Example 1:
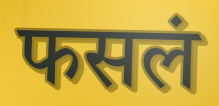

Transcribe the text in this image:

फसलं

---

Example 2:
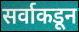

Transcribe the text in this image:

सर्वाकडून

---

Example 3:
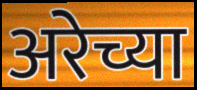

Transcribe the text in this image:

अरेच्या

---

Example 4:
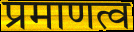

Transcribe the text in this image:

प्रमाणत्व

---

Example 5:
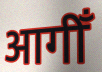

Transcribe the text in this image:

आगीँ